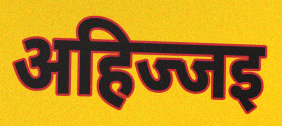
अहिज्जइ